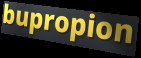
bupropion